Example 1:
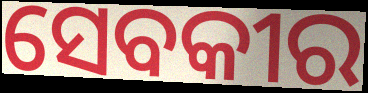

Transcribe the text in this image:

ସେବକୀର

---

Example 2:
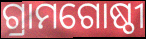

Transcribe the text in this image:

ଗ୍ରାମଗୋଷ୍ଠୀ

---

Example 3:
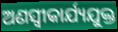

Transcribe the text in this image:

ଅଣସ୍ବୀକାର୍ଯ୍ୟଯୁକ୍ତ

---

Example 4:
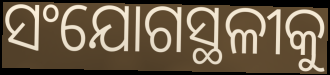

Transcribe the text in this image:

ସଂଯୋଗସ୍ଥଳୀକୁ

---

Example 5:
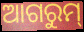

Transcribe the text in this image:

ଆଗରୁମ୍